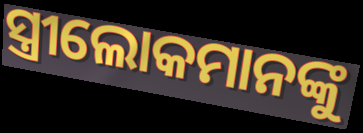
ସ୍ତ୍ରୀଲୋକମାନଙ୍କୁ